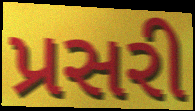
પ્રસરી